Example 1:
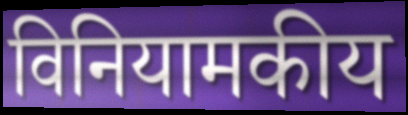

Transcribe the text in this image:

विनियामकीय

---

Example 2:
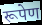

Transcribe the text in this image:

रूपेण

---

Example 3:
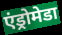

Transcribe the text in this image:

एंड्रोमेडा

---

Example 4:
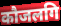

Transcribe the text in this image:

कौजलगि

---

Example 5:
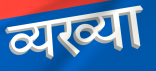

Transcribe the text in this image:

व्यख्या